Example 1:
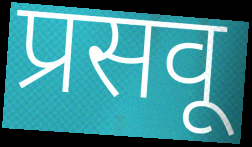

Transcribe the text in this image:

प्रसवू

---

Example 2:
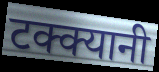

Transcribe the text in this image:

टक्क्यानी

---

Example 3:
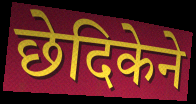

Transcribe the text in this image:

छेदिकेने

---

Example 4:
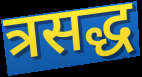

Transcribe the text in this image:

त्रसद्ध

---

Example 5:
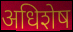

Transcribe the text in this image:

अधिशेष